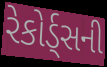
રેકોર્ડ્સની